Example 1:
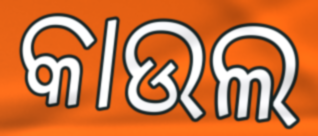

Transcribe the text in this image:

କାଉଲ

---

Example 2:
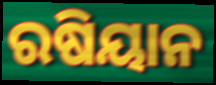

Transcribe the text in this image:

ରଷିୟାନ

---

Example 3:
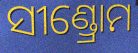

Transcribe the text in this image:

ସୀଣ୍ଡ୍ରୋମ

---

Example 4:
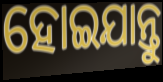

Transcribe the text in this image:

ହୋଇଯାନ୍ତୁ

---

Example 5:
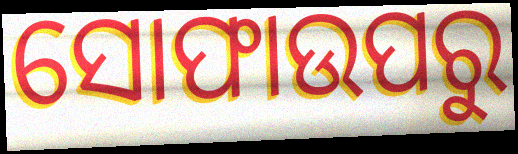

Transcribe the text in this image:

ସୋଫାଉପରୁ